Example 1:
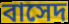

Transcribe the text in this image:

বাসেদ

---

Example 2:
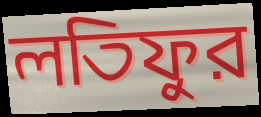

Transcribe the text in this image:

লতিফুর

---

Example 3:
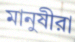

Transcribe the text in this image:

মানুষীরা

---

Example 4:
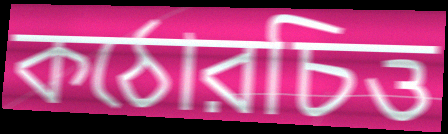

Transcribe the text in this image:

কঠোরচিত্ত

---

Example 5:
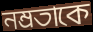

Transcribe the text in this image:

নম্রতাকে